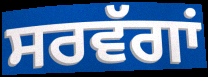
ਸਰਵੱਗਾਂ